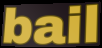
bail